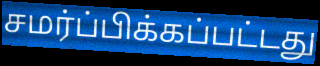
சமர்ப்பிக்கப்பட்டது